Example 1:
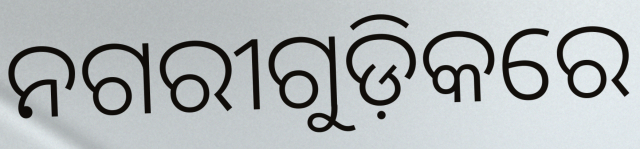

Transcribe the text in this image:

ନଗରୀଗୁଡ଼ିକରେ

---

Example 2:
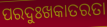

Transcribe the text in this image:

ପରଦୁଃଖକାତରତା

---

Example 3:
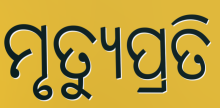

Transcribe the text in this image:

ମୃତ୍ୟୁପ୍ରତି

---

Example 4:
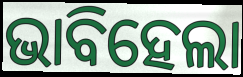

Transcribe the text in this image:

ଭାବିହେଲା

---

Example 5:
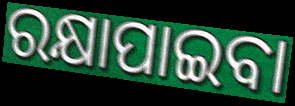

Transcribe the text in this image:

ରକ୍ଷାପାଇବା